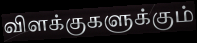
விளக்குகளுக்கும்